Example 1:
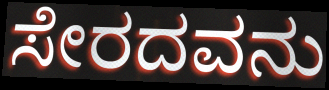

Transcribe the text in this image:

ಸೇರದವನು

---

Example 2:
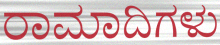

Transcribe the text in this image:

ರಾಮಾದಿಗಳು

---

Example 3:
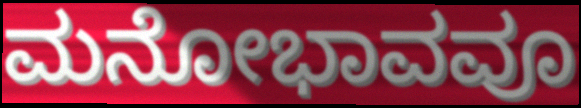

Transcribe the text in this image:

ಮನೋಭಾವವೂ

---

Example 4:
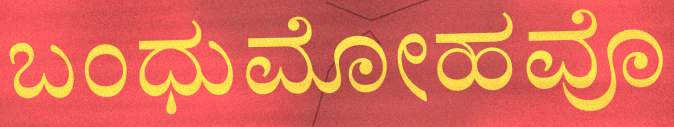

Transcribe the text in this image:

ಬಂಧುಮೋಹವೊ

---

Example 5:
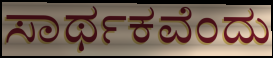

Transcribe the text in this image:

ಸಾರ್ಥಕವೆಂದು